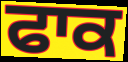
ਫਾਕ